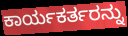
ಕಾರ್ಯಕರ್ತರನ್ನು